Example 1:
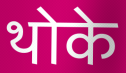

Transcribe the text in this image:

थोके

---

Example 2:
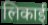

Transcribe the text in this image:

लिकाई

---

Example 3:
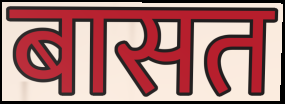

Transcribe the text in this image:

बासत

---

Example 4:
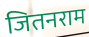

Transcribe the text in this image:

जितनराम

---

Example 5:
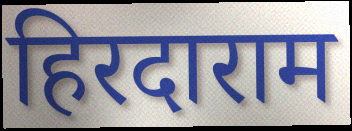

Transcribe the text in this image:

हिरदाराम